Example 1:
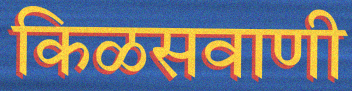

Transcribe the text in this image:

किळसवाणी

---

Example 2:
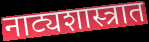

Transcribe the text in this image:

नाट्यशास्त्रात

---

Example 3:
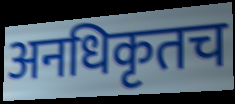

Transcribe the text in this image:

अनधिकृतच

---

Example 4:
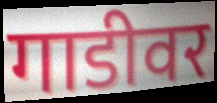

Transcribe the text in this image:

गाडीवर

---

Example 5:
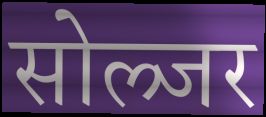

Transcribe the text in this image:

सोल्जर